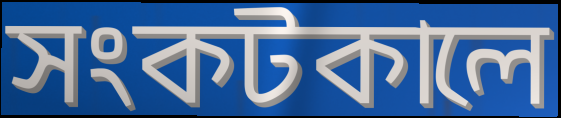
সংকটকালে